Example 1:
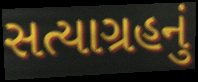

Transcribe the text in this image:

સત્યાગ્રહનું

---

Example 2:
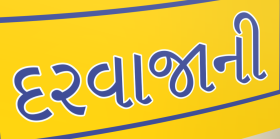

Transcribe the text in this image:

દરવાજાની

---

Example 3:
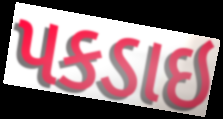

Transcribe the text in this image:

પકડાઇ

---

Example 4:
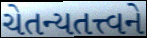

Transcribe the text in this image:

ચેતન્યતત્ત્વને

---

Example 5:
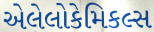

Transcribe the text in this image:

એલેલોકેમિકલ્સ